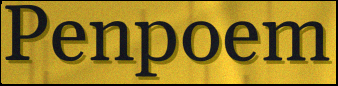
Penpoem